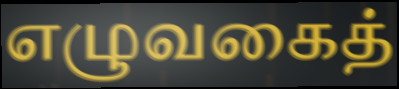
எழுவகைத்